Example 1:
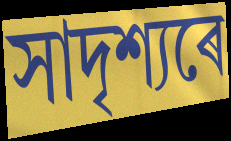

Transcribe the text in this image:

সাদৃশ্যৰে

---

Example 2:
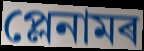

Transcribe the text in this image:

প্লেনামৰ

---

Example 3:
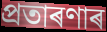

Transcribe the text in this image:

প্ৰতাৰণাৰ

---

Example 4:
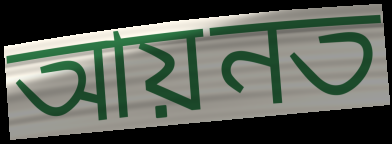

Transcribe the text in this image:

আয়নত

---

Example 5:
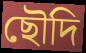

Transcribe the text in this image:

ছৌদি